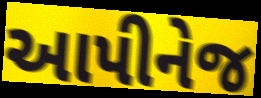
આપીનેજ